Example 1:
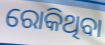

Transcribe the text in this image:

ରୋକିଥିବା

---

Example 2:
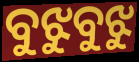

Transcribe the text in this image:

ବୁଝୁବୁଝୁ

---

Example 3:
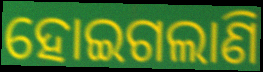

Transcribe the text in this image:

ହୋଇଗଲାଣି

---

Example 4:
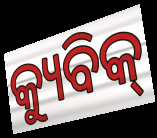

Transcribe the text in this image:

କ୍ୟୁବିକ୍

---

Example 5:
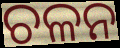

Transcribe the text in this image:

ଚଳନ